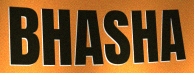
BHASHA